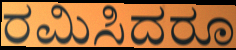
ರಮಿಸಿದರೂ